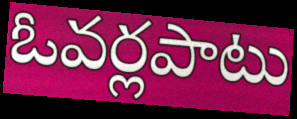
ఓవర్లపాటు